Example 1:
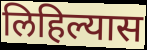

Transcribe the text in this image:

लिहिल्यास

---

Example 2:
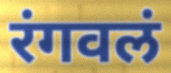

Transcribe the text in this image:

रंगवलं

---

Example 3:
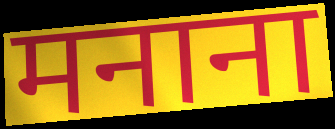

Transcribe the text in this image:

मनाना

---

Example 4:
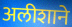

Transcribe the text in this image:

अलीशाने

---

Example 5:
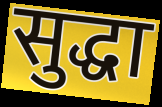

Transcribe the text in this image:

सुद्धा